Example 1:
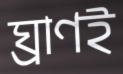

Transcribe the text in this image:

ঘ্রাণই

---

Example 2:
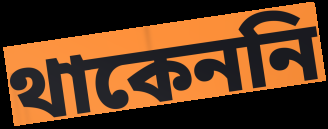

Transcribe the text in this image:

থাকেননি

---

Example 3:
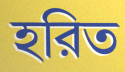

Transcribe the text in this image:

হরিত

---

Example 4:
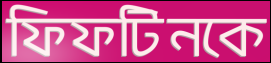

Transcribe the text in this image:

ফিফটিনকে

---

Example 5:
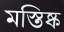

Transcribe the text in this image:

মস্তিষ্ক